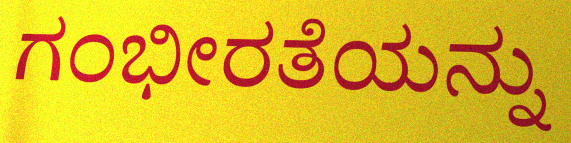
ಗಂಭೀರತೆಯನ್ನು